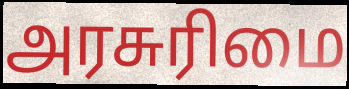
அரசுரிமை